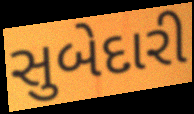
સુબેદારી